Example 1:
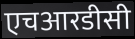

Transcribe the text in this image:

एचआरडीसी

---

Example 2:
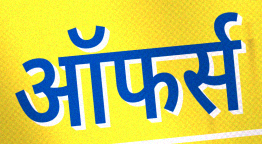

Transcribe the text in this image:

ऑफर्स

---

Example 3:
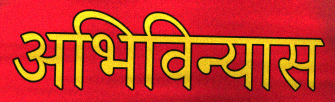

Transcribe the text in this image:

अभिविन्यास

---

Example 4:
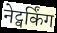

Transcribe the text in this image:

नेट्वर्किंग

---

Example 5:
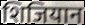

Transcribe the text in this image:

शिजियान